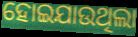
ହୋଇଯାଉଥିଲା